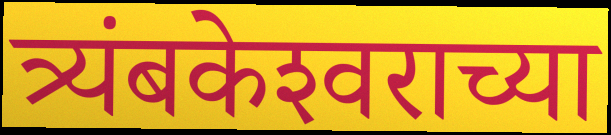
त्र्यंबकेश्‍वराच्या